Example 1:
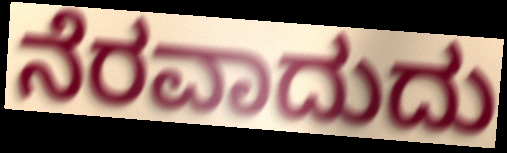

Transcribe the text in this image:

ನೆರವಾದುದು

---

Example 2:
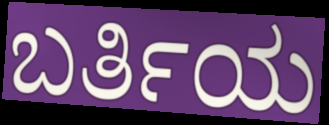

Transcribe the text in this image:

ಬರ್ತಿಯ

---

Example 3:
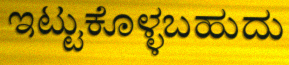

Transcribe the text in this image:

ಇಟ್ಟುಕೊಳ್ಳಬಹುದು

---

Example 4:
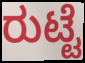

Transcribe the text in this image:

ರುಟ್ಟೆ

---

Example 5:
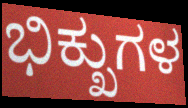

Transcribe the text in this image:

ಭಿಕ್ಖುಗಳ